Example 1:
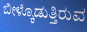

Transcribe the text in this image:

ಬೀಳ್ಕೊಡುತ್ತಿರುವ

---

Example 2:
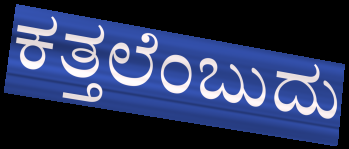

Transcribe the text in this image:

ಕತ್ತಲೆಂಬುದು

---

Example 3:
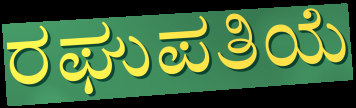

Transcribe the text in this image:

ರಘುಪತಿಯೆ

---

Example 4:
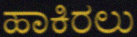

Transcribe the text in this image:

ಹಾಕಿರಲು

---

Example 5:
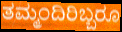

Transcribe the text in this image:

ತಮ್ಮಂದಿರಿಬ್ಬರೂ